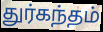
துர்கந்தம்